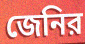
জেনির